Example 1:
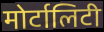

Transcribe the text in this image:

मोर्टालिटी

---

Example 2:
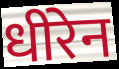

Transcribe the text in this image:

धीरेन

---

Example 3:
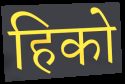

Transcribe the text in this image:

हिको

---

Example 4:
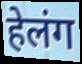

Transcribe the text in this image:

हेलंग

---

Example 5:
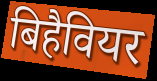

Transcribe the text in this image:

बिहैवियर